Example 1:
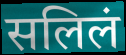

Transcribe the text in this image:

सलिलं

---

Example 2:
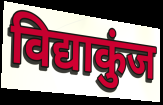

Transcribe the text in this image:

विद्याकुंज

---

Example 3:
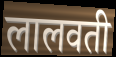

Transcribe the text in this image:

लालवती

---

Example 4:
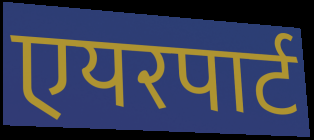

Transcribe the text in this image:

एयरपार्ट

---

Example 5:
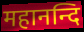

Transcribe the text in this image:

महानन्दि